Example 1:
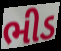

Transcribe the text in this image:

ભીડ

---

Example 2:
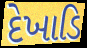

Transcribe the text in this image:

દેખાડિ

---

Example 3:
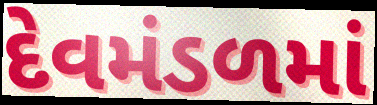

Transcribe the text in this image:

દેવમંડળમાં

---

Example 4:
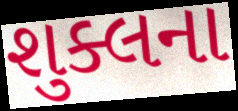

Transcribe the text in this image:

શુક્લના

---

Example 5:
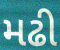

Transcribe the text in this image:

મઢી